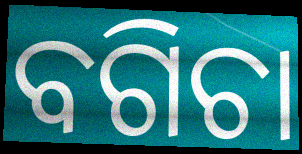
ବଗିଚା